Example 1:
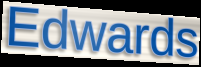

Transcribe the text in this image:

Edwards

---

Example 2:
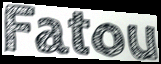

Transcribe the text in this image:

Fatou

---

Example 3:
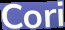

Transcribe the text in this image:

Cori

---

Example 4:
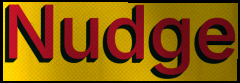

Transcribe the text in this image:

Nudge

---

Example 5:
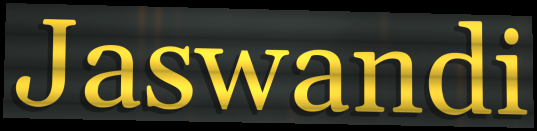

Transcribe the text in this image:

Jaswandi